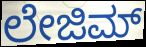
ಲೇಜಿಮ್